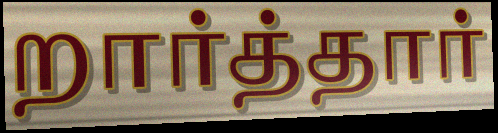
றார்த்தார்